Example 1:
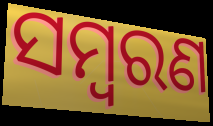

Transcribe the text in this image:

ସମ୍ୱରଣ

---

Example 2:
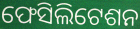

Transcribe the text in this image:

ଫେସିଲିଟେଶନ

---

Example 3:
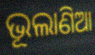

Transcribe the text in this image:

ଭୂଲାଣିଆ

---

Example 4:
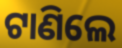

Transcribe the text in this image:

ଟାଣିଲେ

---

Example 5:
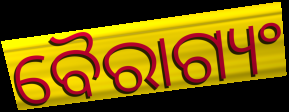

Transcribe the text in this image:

ବୈରାଗ୍ୟଂ